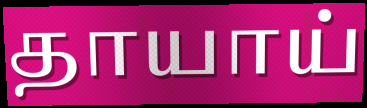
தாயாய்